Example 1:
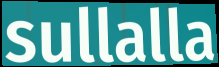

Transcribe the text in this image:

sullalla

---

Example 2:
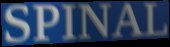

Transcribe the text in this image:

SPINAL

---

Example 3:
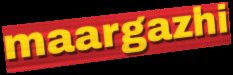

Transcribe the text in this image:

maargazhi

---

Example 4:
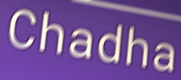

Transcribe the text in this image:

Chadha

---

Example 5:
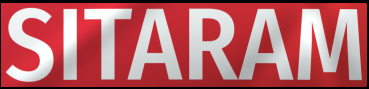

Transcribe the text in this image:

SITARAM